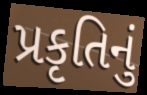
પ્રકૃતિનું